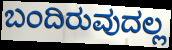
ಬಂದಿರುವುದಲ್ಲ